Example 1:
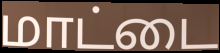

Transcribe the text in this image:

மாட்டை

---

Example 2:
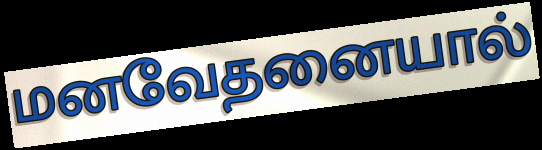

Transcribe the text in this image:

மனவேதனையால்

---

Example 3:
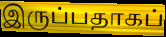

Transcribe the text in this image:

இருப்பதாகப்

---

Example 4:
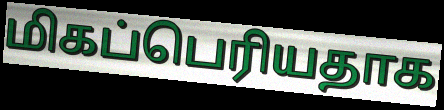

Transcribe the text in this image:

மிகப்பெரியதாக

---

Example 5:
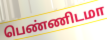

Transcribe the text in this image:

பெண்ணிடமா